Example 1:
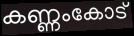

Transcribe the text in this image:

കണ്ണംകോട്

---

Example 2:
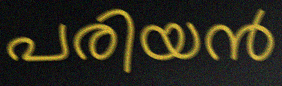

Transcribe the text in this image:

പരിയൻ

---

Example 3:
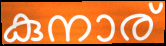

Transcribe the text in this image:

കുനാര്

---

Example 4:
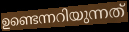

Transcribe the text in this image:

ഉണ്ടെന്നറിയുന്നത്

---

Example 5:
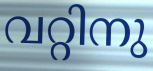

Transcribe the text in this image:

വറ്റിനു